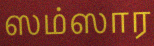
ஸம்ஸார